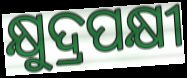
କ୍ଷୁଦ୍ରପକ୍ଷୀ